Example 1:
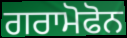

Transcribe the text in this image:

ਗਰਾਮੋਫੋਨ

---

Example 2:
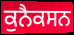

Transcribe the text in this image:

ਕੁਨੈਕਸਨ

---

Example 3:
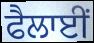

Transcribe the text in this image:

ਫੈਲਾਈਂ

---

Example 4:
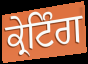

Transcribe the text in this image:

ਕ੍ਰੇਟਿੰਗ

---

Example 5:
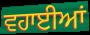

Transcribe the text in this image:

ਵਹਾਈਆਂ